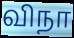
விநா